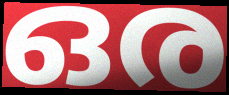
ഒര